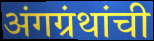
अंगग्रंथांची